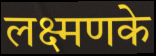
लक्ष्मणके